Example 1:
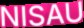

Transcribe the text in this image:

NISAU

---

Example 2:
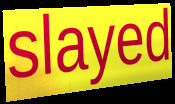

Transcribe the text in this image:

slayed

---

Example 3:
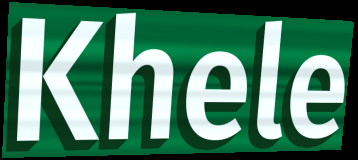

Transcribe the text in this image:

Khele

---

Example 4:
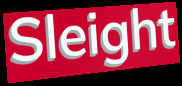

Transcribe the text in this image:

Sleight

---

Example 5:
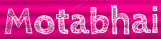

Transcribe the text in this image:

Motabhai